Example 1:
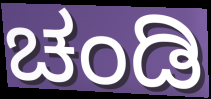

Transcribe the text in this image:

ಚಂಡಿ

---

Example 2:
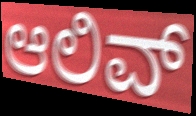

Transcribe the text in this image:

ಆಲಿವ್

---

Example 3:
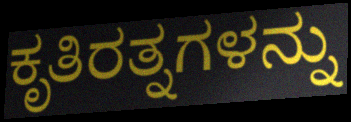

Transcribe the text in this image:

ಕೃತಿರತ್ನಗಳನ್ನು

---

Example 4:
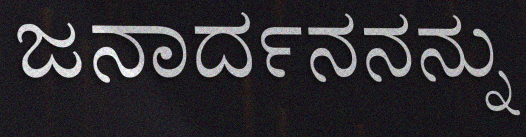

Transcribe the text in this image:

ಜನಾರ್ದನನನ್ನು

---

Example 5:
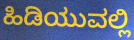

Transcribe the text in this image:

ಹಿಡಿಯುವಲ್ಲಿ